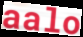
aalo